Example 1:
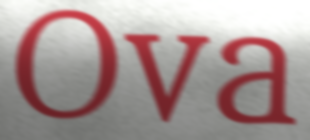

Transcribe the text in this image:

Ova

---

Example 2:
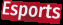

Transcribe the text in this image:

Esports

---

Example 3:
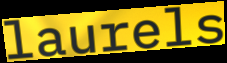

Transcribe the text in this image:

laurels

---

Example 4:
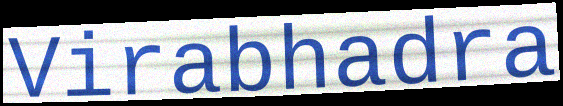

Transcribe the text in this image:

Virabhadra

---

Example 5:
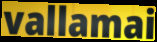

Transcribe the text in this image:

vallamai